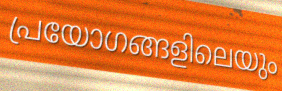
പ്രയോഗങ്ങളിലെയും